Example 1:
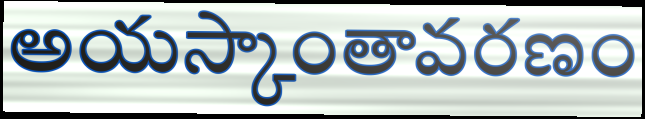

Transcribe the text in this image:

అయస్కాంతావరణం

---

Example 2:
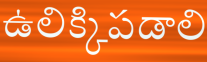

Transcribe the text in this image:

ఉలిక్కిపడాలి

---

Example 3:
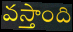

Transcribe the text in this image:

వస్తాంది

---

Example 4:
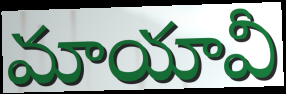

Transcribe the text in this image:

మాయావీ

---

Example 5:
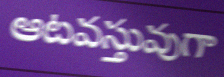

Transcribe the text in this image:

ఆటవస్తువుగా